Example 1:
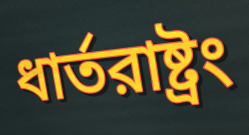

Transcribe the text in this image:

ধার্তরাষ্ট্রং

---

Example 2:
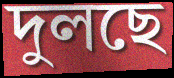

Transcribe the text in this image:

দুলছে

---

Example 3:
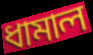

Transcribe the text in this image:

ধামাল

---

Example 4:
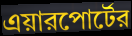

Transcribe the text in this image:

এয়ারপোর্টের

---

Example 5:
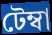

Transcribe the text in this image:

টেম্বা